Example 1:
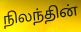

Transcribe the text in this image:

நிலந்தின்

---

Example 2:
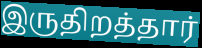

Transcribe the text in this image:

இருதிறத்தார்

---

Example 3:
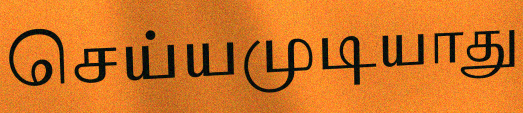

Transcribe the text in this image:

செய்யமுடியாது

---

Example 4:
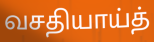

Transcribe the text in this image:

வசதியாய்த்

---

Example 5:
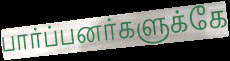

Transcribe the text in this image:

பார்ப்பனர்களுக்கே